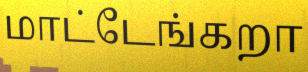
மாட்டேங்கறா